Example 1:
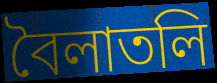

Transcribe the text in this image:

বৈলাতলি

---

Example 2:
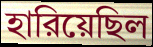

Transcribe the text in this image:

হারিয়েছিল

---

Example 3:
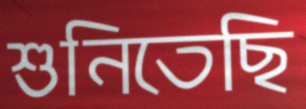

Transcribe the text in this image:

শুনিতেছি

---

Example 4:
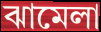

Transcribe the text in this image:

ঝামেলা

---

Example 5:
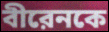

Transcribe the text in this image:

বীরেনকে